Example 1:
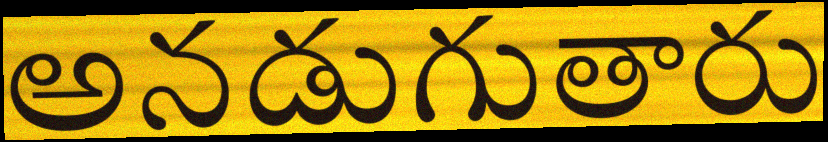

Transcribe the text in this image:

అనడుగుతారు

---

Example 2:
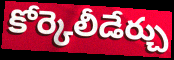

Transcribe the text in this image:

కోర్కెలీడేర్చు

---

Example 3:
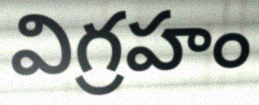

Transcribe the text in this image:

విగ్రహం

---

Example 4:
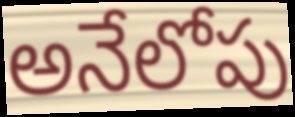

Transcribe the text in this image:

అనేలోపు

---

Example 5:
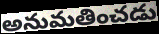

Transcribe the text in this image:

అనుమతించడు